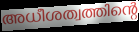
അധീശത്വത്തിന്റെ